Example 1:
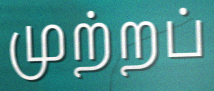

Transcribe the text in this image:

முற்றப்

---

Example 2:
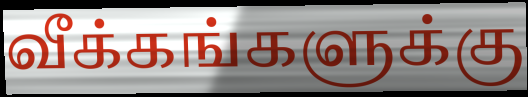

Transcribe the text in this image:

வீக்கங்களுக்கு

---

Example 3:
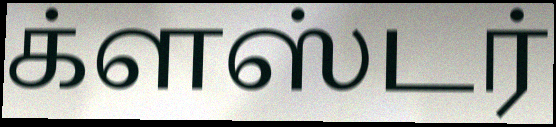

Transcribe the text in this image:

க்ளஸ்டர்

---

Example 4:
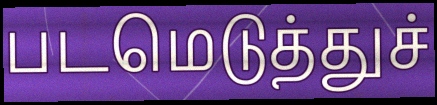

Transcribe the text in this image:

படமெடுத்துச்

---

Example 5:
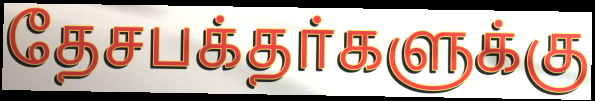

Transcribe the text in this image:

தேசபக்தர்களுக்கு